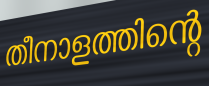
തീനാളത്തിന്റെ